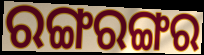
ରଙ୍ଗରଙ୍ଗର